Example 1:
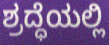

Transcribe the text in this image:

ಶ್ರದ್ಧೆಯಲ್ಲಿ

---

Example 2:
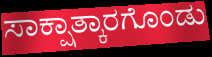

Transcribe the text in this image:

ಸಾಕ್ಷಾತ್ಕಾರಗೊಂಡು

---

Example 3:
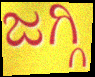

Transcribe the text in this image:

ಜಗ್ಗಿ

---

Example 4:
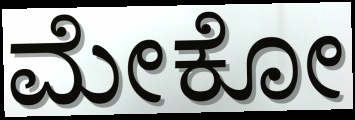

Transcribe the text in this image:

ಮೇಕೋ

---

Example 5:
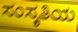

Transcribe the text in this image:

ಸಂಸ್ಕೃತಿಯ